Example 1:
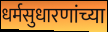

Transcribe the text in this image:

धर्मसुधारणांच्या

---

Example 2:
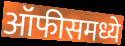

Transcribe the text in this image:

ऑफीसमध्ये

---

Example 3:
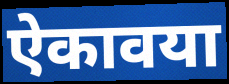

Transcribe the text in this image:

ऐकावया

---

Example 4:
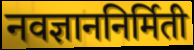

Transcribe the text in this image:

नवज्ञाननिर्मिती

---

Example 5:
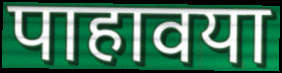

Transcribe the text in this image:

पाहावया